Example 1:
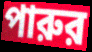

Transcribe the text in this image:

পারুর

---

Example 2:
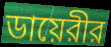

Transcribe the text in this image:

ডায়েরীর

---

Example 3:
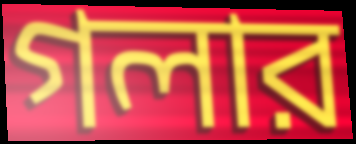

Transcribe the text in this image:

গলার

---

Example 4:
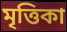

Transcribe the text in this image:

মৃত্তিকা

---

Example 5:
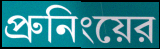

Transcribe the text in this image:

প্রুনিংয়ের